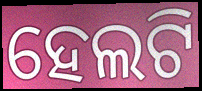
ହେଲଟି